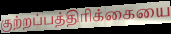
குற்றப்பத்திரிக்கையை